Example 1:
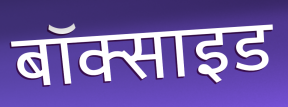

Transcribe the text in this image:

बॉक्साइड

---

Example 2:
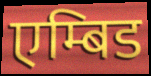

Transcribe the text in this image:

एम्बिड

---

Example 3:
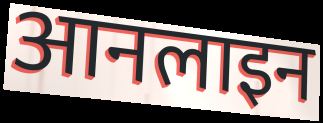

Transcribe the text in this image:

आनलाइन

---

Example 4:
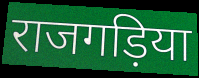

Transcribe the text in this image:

राजगड़िया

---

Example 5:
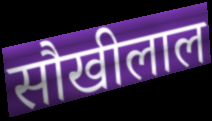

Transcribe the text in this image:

सौखीलाल